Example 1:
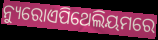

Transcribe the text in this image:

ନ୍ୟୁରୋଏପିଥେଲିୟମରେ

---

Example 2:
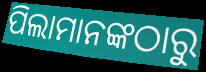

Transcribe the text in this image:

ପିଲାମାନଙ୍କଠାରୁ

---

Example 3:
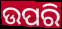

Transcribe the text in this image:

ଉପରି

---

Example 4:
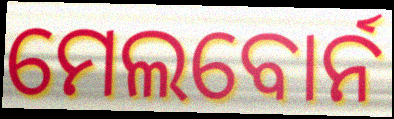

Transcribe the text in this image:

ମେଲବୋର୍ନ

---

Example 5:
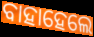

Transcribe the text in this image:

ବାହାହେଲେ